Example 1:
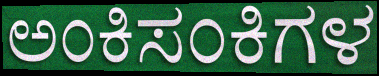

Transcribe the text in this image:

ಅಂಕಿಸಂಕಿಗಳ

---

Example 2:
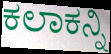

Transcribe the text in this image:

ಕಲಾಕನ್ನಿ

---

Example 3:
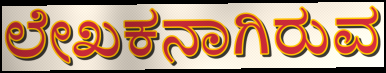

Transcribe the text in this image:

ಲೇಖಕನಾಗಿರುವ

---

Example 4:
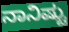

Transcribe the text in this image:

ನಾನಿಷ್ಟು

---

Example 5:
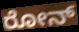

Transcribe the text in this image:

ರೋನ್